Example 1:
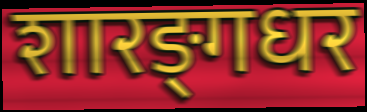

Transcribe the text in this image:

शारङ्गधर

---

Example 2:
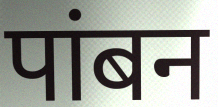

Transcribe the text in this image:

पांबन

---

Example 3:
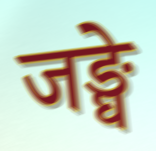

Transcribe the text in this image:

जङ्घे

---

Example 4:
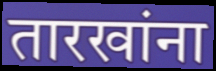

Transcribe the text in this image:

तारखांना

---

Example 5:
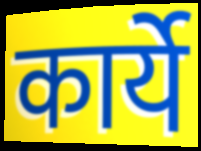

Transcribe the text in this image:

कार्ये